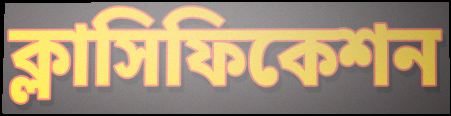
ক্লাসিফিকেশন